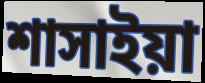
শাসাইয়া